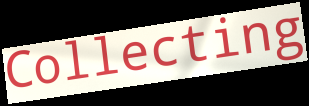
Collecting